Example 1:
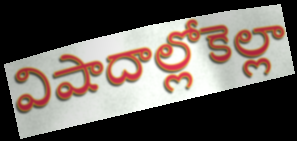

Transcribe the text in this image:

విషాదాల్లోకెల్లా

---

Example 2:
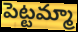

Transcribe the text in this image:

పెట్టమ్మా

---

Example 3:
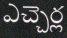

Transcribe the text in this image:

ఎచ్చెర్ల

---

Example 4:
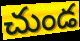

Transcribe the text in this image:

చుండ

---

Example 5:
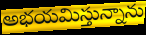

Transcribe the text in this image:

అభయమిస్తున్నాను